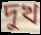
দুখ